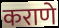
कराणे